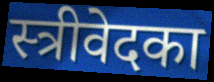
स्त्रीवेदका